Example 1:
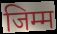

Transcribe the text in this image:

जिम्म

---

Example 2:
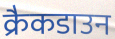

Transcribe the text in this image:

क्रैकडाउन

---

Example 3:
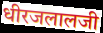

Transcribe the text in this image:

धीरजलालजी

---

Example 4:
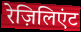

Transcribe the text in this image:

रेज़िलिएंट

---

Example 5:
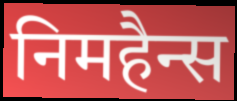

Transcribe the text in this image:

निमहैन्स